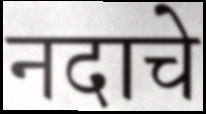
नदाचे